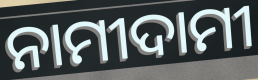
ନାମୀଦାମୀ